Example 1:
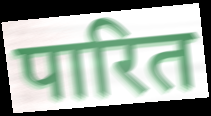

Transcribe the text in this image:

पारित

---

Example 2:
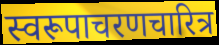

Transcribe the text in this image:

स्वरूपाचरणचारित्र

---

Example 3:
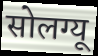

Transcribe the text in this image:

सोलग्यू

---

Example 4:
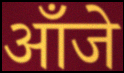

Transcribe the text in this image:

आँजे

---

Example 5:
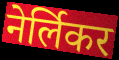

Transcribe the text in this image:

नेर्लिकर